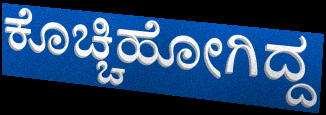
ಕೊಚ್ಚಿಹೋಗಿದ್ದ